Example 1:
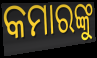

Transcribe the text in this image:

କମାରଙ୍କୁ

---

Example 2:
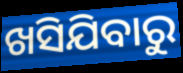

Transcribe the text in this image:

ଖସିଯିବାରୁ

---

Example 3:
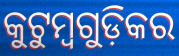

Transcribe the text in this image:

କୁଟୁମ୍ବଗୁଡ଼ିକର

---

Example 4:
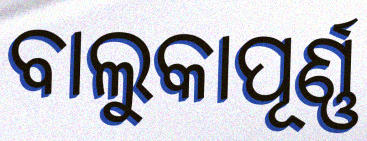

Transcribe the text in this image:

ବାଲୁକାପୂର୍ଣ୍ଣ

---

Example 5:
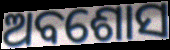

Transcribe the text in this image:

ଅବଶୋସ